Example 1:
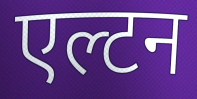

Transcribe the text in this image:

एल्टन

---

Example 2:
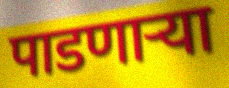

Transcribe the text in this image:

पाडणाऱ्या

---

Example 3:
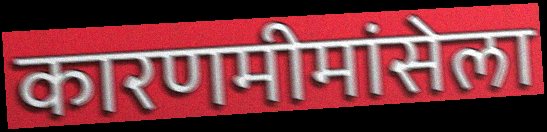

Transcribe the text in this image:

कारणमीमांसेला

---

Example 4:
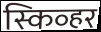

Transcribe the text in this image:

स्किव्हर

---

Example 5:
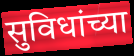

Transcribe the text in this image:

सुविधांच्या